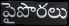
పైపొరలు